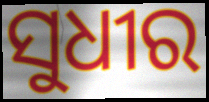
ସୁଧୀର